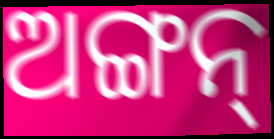
ଅଙ୍ଗନ୍